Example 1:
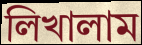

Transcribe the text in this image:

লিখালাম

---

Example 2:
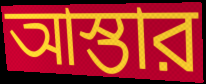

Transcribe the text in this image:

আস্তার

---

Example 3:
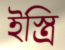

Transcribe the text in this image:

ইস্ত্রি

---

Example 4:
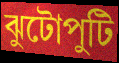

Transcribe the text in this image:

ঝুটোপুটি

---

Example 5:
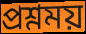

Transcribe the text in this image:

প্রশ্নময়